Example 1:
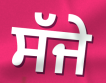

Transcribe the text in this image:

ਸੱਜੇ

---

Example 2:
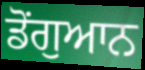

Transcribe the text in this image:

ਡੋਂਗੁਆਨ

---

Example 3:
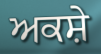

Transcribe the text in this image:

ਅਕਸ਼ੇ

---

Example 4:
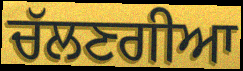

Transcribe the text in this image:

ਚੱਲਣਗੀਆ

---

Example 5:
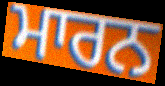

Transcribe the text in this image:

ਮਾਰਨ